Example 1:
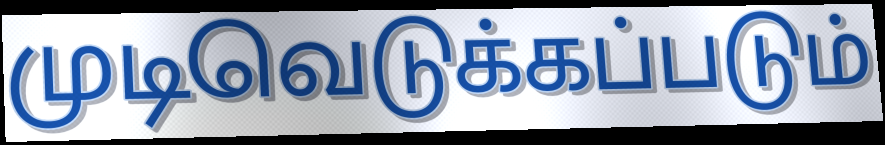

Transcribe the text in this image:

முடிவெடுக்கப்படும்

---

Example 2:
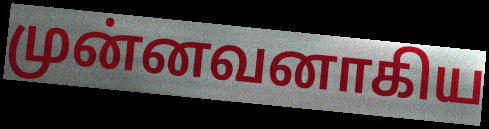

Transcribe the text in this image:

முன்னவனாகிய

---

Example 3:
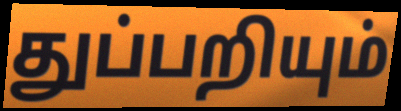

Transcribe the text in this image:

துப்பறியும்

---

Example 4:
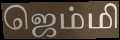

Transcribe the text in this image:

ஜெம்மி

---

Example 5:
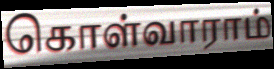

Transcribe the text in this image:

கொள்வாராம்